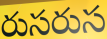
రుసరుస